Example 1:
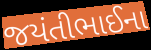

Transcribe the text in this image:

જયંતીભાઈના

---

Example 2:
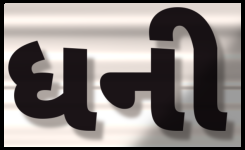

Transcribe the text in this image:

ધની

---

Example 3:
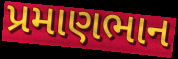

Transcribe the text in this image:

પ્રમાણભાન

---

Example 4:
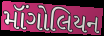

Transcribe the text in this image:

મૉંગોલિયન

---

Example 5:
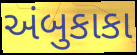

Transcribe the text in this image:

અંબુકાકા